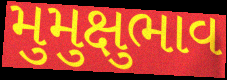
મુમુક્ષુભાવ